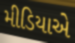
મીડિયાએ